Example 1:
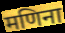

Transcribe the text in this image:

मणिना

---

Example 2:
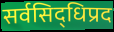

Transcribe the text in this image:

सर्वसिद्धिप्रद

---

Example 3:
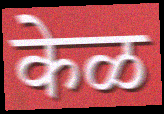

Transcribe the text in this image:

केळ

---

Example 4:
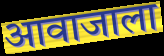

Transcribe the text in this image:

आवाजाला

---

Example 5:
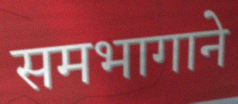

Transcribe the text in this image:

समभागाने